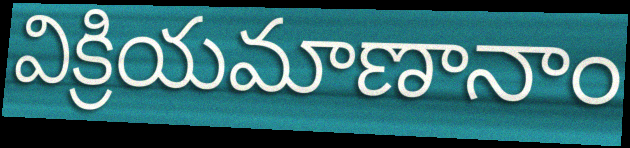
విక్రియమాణానాం